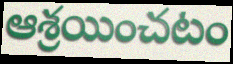
ఆశ్రయించటం